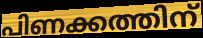
പിണക്കത്തിന്